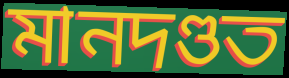
মানদণ্ডত